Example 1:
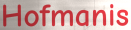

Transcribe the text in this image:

Hofmanis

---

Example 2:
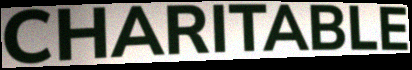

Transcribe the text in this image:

CHARITABLE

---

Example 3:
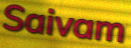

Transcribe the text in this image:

Saivam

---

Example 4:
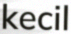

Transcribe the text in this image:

kecil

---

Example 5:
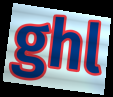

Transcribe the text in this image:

ghl